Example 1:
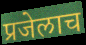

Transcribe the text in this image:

प्रजेलाच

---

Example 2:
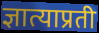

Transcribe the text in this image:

ज्ञात्याप्रती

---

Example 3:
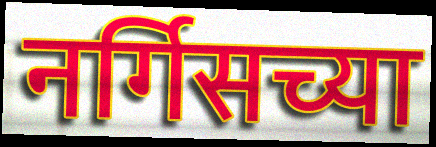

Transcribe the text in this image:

नर्गिसच्या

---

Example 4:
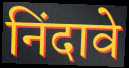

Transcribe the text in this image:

निंदावे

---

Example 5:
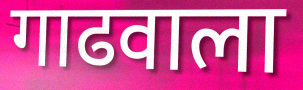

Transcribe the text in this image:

गाढवाला